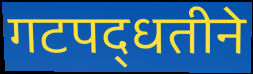
गटपद्धतीने